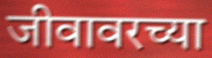
जीवावरच्या